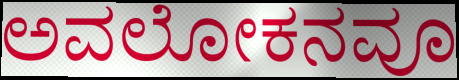
ಅವಲೋಕನವೂ